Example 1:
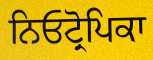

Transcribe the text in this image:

ਨਿਓਟ੍ਰੋਪਿਕਾ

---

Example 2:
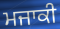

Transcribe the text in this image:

ਮਜਾਕੀ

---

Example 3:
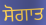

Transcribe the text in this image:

ਸੋਗਾਤ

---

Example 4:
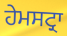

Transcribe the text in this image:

ਹੇਮਸਟ੍ਰਾ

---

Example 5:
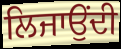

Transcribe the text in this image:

ਲਿਜਾਉਂਦੀ